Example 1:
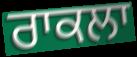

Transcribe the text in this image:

ਰਾਕਲਾ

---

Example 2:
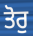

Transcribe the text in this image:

ਤੋਰੁ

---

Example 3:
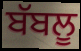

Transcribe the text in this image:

ਬੱਬਲੂ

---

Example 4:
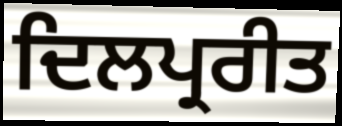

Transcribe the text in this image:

ਦਿਲਪ੍ਰਰੀਤ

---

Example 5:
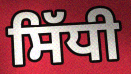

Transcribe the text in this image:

ਸਿੱਧੀ